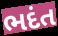
ભદંત